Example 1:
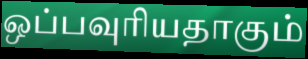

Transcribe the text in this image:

ஒப்பவுரியதாகும்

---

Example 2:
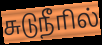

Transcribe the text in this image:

சுடுநீரில்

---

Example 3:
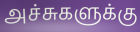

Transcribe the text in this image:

அச்சுகளுக்கு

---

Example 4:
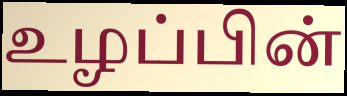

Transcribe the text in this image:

உழப்பின்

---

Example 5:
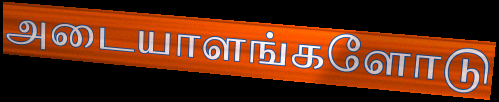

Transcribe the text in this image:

அடையாளங்களோடு